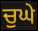
ਚੁਘੇ